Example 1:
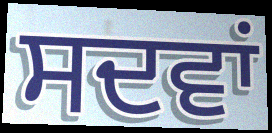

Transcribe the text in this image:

ਸਦਵਾਂ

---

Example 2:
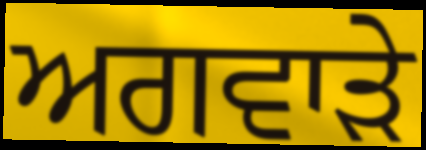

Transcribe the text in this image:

ਅਗਵਾੜੇ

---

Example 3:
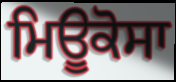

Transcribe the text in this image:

ਮਿਊਕੋਸਾ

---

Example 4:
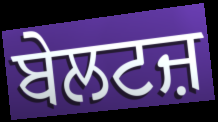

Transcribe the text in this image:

ਬੇਲਟਜ਼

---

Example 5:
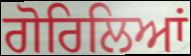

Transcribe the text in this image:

ਗੋਰਿਲਿਆਂ